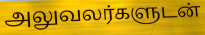
அலுவலர்களுடன்